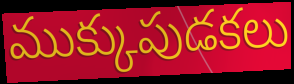
ముక్కుపుడకలు